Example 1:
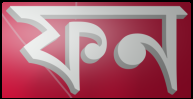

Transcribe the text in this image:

ফন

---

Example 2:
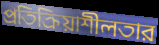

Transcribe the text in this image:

প্রতিক্রিয়াশীলতার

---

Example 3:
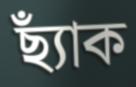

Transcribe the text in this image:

ছ্যাঁক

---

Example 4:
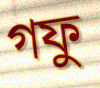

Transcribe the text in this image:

গফু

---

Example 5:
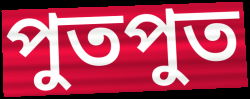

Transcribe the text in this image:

পুতপুত